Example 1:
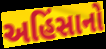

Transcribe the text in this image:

અહિંસાનો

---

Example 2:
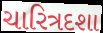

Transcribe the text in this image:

ચારિત્રદશા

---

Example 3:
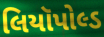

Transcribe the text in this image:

લિયૉપોલ્ડ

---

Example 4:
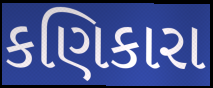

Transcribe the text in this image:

કણિકારા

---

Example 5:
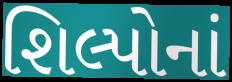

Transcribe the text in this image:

શિલ્પોનાં